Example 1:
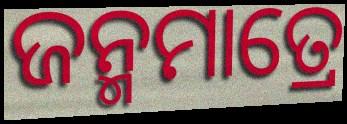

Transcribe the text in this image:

ଜନ୍ମମାତ୍ରେ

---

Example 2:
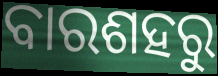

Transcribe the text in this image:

ବାରଶହରୁ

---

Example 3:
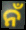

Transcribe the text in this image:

ନଁ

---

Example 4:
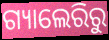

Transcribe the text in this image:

ଗ୍ୟାଲେରିରୁ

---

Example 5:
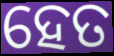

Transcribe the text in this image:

ହେତ